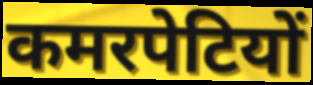
कमरपेटियों